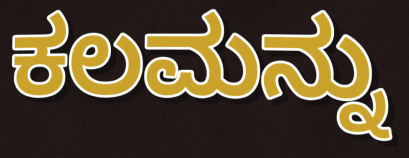
ಕಲಮನ್ನು